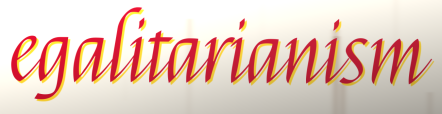
egalitarianism